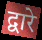
द्वारे